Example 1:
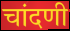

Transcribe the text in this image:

चांदणी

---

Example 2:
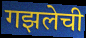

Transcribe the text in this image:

गझलेची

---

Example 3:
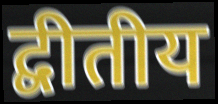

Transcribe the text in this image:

द्वीतीय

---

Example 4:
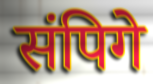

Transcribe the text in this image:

संपिगे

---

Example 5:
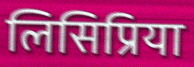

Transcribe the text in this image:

लिसिप्रिया